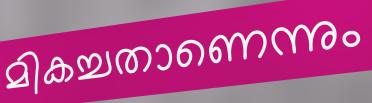
മികച്ചതാണെന്നും